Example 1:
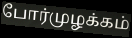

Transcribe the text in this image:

போர்முழக்கம்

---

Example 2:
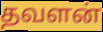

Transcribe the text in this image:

தவளன்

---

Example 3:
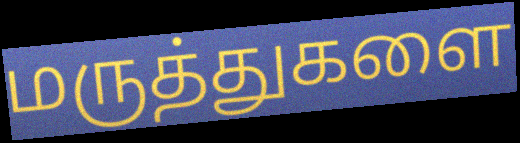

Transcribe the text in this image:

மருத்துகளை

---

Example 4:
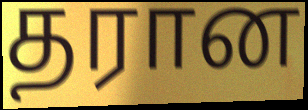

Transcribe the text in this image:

தரான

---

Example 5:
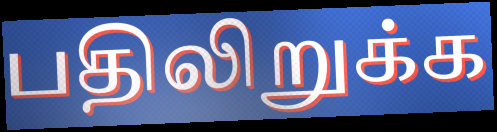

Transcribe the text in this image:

பதிலிறுக்க